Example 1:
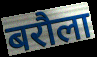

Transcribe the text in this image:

बरौला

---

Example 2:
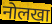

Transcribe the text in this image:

नोलखा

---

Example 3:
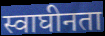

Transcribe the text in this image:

स्वाघीनता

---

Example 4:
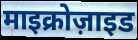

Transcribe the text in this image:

माइक्रोज़ाइड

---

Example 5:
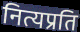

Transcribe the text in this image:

नित्यप्रति